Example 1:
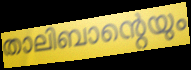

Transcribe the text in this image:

താലിബാന്റെയും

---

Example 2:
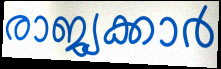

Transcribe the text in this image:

രാജ്യക്കാർ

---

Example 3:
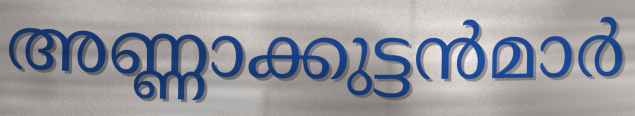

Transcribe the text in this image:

അണ്ണാക്കുട്ടൻമാർ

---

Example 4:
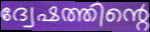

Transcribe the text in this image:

ദ്വേഷത്തിന്റെ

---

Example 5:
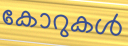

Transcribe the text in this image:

കോറുകൾ